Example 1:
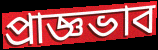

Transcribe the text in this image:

প্রাজ্ঞভাব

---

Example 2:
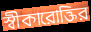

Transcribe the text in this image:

স্বীকারোক্তির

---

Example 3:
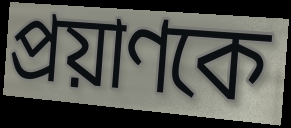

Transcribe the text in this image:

প্রয়াণকে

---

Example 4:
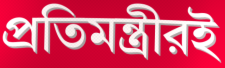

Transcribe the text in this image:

প্রতিমন্ত্রীরই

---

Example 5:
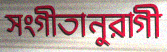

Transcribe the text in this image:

সংগীতানুরাগী